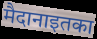
मैदानाइतका